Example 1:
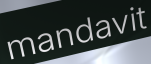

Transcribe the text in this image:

mandavit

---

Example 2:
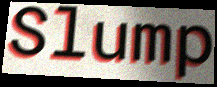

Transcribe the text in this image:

Slump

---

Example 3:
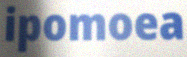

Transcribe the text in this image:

ipomoea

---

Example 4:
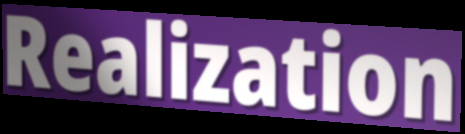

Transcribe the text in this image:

Realization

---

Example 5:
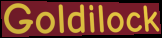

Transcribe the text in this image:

Goldilock